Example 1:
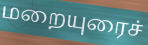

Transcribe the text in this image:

மறையுரைச்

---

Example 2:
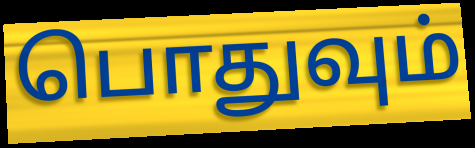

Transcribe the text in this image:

பொதுவும்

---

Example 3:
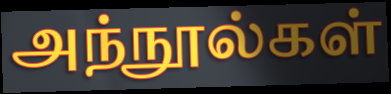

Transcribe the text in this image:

அந்நூல்கள்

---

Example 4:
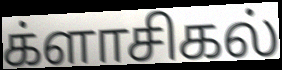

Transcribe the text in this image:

க்ளாசிகல்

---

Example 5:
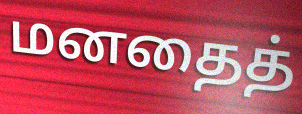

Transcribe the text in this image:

மனதைத்